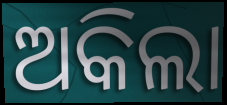
ଅକିଲା